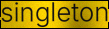
singleton